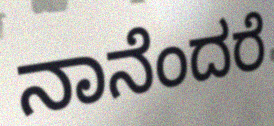
ನಾನೆಂದರೆ